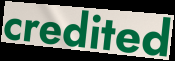
credited